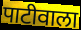
पाटीवाला